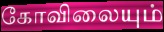
கோவிலையும்